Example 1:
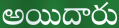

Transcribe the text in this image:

అయిదారు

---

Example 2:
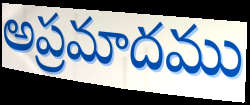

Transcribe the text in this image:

అప్రమాదము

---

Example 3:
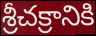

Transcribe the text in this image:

శ్రీచక్రానికి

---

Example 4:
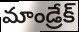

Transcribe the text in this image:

మాండ్రేక్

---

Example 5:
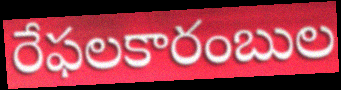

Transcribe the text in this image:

రేఫలకారంబుల